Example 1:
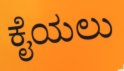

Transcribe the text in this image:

ಕೈಯಲು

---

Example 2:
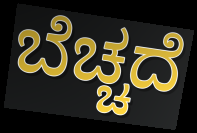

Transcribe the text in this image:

ಬೆಚ್ಚದೆ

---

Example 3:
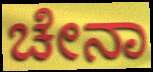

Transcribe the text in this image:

ಚೇನಾ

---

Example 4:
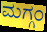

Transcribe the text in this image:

ಮಗ್ಗಂ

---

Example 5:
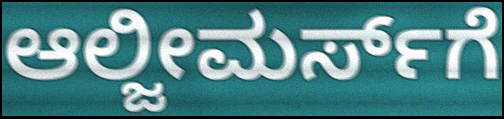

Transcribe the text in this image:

ಆಲ್ಜೀಮರ್ಸ್‌ಗೆ